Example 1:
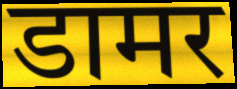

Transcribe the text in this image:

डामर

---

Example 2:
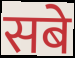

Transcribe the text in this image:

सबे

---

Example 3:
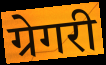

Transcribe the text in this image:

ग्रेगरी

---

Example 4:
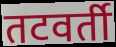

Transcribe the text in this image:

तटवर्ती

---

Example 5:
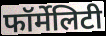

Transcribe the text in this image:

फॉर्मेलिटी